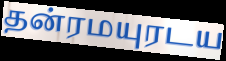
தன்ரமயுரடய